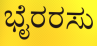
ಭೈರರಸು